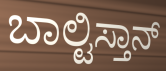
ಬಾಲ್ಟಿಸ್ತಾನ್